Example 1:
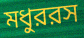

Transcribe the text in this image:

মধুররস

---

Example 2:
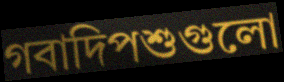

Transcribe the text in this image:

গবাদিপশুগুলো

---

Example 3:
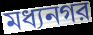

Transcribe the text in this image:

মধ্যনগর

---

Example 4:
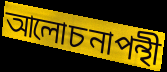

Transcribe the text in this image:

আলোচনাপন্থী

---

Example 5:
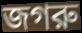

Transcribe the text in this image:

জগরু